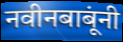
नवीनबाबूंनी